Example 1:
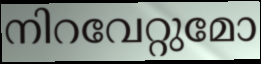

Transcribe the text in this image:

നിറവേറ്റുമോ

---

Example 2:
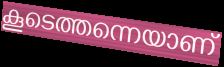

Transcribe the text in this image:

കൂടെത്തന്നെയാണ്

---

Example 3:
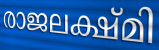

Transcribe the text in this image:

രാജലക്ഷ്മി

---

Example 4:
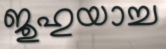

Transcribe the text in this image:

ജുഹുയാച്ച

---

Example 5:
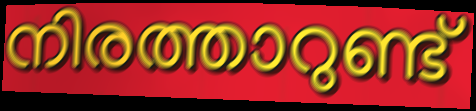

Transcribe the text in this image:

നിരത്താറുണ്ട്